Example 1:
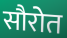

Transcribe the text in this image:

सौरोत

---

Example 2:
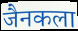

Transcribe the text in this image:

जैनकला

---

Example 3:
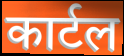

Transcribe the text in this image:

कार्टल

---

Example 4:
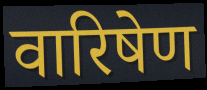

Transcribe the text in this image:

वारिषेण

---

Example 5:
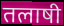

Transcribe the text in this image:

तलाषी